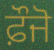
ਫ਼ੌਜੋ